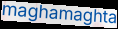
maghamaghta